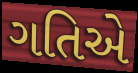
ગતિએ